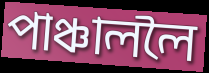
পাঞ্চাললৈ